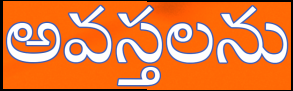
అవస్తలను